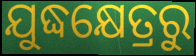
ଯୁଦ୍ଧକ୍ଷେତ୍ରରୁ